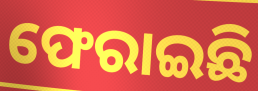
ଫେରାଇଛି